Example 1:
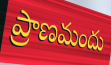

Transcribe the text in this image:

ప్రాణమందు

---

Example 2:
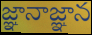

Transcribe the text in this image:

జ్ఞానాజ్ఞాన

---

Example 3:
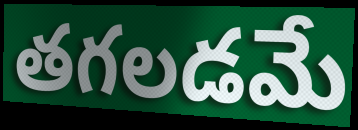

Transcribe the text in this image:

తగలడమే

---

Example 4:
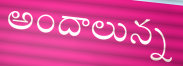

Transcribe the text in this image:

అందాలున్న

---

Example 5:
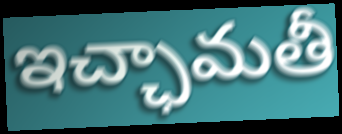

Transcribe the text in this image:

ఇచ్ఛామతీ